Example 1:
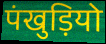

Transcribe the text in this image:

पंखुड़ियो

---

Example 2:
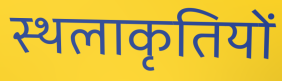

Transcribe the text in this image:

स्थलाकृतियों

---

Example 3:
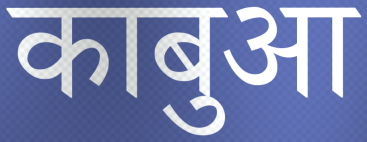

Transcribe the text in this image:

काबुआ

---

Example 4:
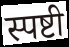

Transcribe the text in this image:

स्पष्टी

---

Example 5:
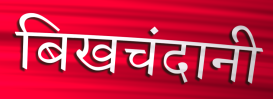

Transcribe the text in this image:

बिखचंदानी